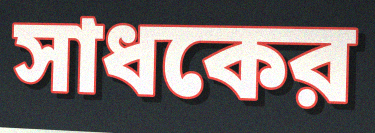
সাধকের